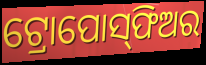
ଟ୍ରୋପୋସ୍‌ଫିଅର